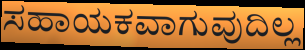
ಸಹಾಯಕವಾಗುವುದಿಲ್ಲ